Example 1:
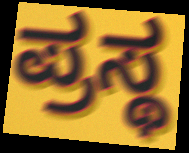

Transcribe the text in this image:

ಪ್ರಸ್ಥ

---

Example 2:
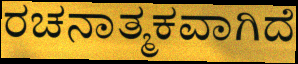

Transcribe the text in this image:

ರಚನಾತ್ಮಕವಾಗಿದೆ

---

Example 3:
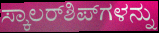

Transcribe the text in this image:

ಸ್ಕಾಲರ್‌ಶಿಪ್‌ಗಳನ್ನು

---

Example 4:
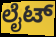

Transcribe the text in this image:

ಲೈಟ್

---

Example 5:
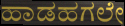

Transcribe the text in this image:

ಹಾಡಹಗಲೇ